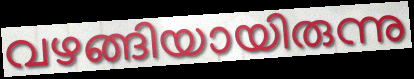
വഴങ്ങിയായിരുന്നു